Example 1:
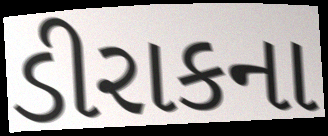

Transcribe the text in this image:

ડીરાકના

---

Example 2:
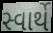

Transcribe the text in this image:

સ્વાર્થે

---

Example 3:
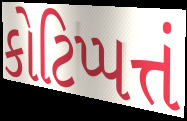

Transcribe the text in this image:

કોટિપ્પત્તં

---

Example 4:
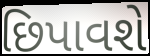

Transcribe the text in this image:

છિપાવશે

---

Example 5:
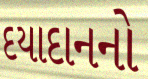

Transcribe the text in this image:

દયાદાનનો